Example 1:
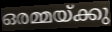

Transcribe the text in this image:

ഒരമ്മയ്ക്കു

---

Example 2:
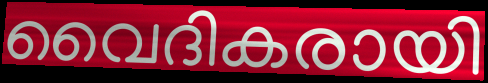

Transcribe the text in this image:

വൈദികരായി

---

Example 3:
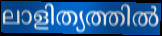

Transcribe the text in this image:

ലാളിത്യത്തിൽ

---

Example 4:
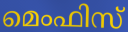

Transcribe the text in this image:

മെംഫിസ്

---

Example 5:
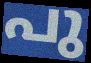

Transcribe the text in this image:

പു